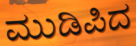
ಮುಡಿಪಿದ